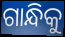
ଗାନ୍ଧିକୁ